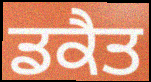
ਡਕੈਤ